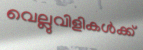
വെല്ലുവിളികൾക്ക്